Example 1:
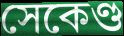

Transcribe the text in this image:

সেকেণ্ড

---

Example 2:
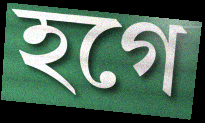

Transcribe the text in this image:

হগে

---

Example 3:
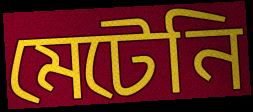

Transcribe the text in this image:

মেটেনি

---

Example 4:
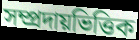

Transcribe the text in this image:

সম্প্রদায়ভিত্তিক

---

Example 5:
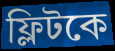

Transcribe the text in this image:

ফ্লিটকে